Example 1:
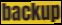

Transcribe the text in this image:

backup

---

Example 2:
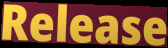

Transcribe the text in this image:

Release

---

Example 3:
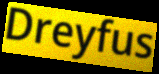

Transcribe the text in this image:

Dreyfus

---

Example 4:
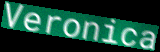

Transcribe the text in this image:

Veronica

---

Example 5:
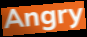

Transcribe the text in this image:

Angry